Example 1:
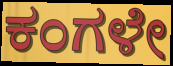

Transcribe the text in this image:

ಕಂಗಳೇ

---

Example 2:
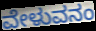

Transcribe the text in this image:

ವೇಳುವನಂ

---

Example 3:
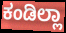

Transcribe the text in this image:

ಕಂಡಿಲ್ಲಾ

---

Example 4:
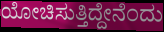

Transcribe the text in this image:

ಯೋಚಿಸುತ್ತಿದ್ದೇನೆಂದು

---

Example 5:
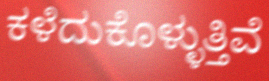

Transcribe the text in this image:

ಕಳೆದುಕೊಳ್ಳುತ್ತಿವೆ